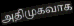
அதிமுகவாக